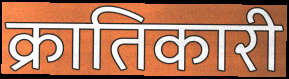
क्रातिकारी